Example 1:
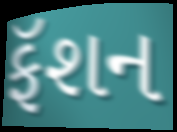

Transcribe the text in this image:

ફૅશન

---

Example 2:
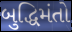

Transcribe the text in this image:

બુદ્ધિમંતો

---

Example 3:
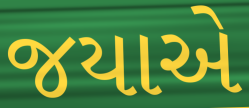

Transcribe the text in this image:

જયાએ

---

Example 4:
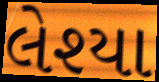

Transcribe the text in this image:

લેશ્યા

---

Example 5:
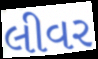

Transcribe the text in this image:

લીવર